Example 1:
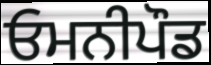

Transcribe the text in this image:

ਓਮਨੀਪੌਡ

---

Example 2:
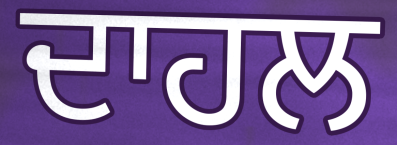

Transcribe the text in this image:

ਦਾਹਲ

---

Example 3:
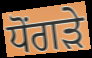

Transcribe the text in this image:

ਧੋਂਗੜੇ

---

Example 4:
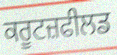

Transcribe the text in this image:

ਕਰੂਟਜ਼ਫੀਲਡ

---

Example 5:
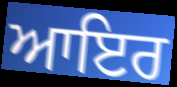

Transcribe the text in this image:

ਆਇਰ